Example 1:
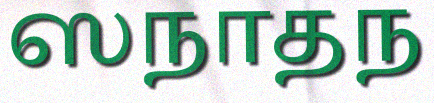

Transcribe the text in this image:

ஸநாதந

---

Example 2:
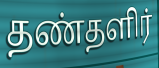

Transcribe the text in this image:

தண்தளிர்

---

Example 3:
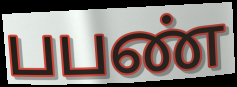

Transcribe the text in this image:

பபண்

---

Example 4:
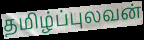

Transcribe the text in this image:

தமிழ்ப்புலவன்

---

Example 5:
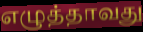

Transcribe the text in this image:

எழுத்தாவது